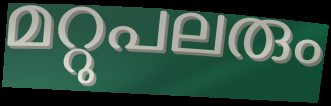
മറ്റുപലരും